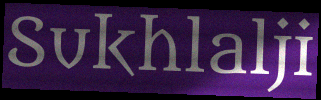
Sukhlalji